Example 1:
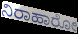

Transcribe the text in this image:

ನಿರಾಹಾರೋ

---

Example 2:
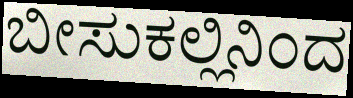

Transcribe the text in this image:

ಬೀಸುಕಲ್ಲಿನಿಂದ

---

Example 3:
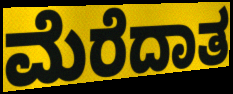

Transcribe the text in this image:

ಮೆರೆದಾತ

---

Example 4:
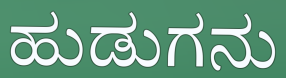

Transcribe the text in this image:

ಹುಡುಗನು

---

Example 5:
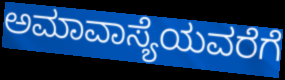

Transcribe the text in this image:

ಅಮಾವಾಸ್ಯೆಯವರೆಗೆ